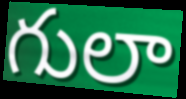
గులా